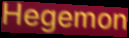
Hegemon